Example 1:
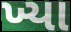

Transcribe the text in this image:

ખ્યા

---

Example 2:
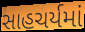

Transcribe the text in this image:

સાહચર્યમાં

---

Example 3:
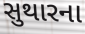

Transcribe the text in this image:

સુથારના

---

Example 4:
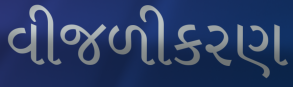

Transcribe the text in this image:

વીજળીકરણ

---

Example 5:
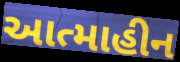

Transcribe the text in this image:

આત્માહીન